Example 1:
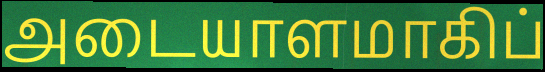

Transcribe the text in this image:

அடையாளமாகிப்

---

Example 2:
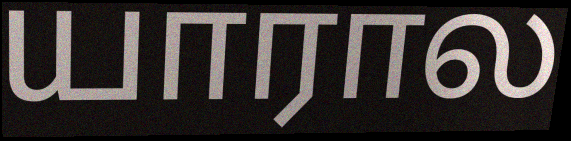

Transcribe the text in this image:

யாரால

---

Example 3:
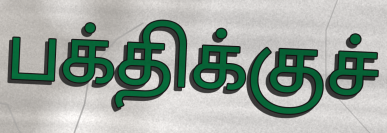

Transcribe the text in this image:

பக்திக்குச்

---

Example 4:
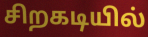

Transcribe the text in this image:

சிறகடியில்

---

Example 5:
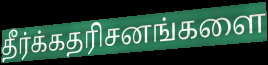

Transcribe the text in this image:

தீர்க்கதரிசனங்களை